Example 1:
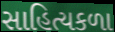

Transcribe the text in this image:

સાહિત્યકળા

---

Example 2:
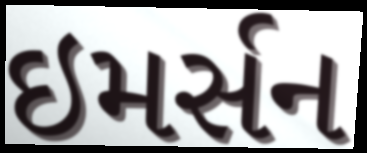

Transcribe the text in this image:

ઇમર્સન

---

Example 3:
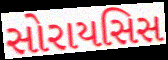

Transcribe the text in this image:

સોરાયસિસ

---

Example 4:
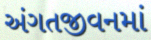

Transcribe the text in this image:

અંગતજીવનમાં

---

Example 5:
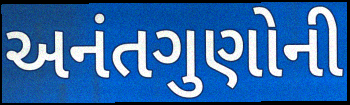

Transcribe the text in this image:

અનંતગુણોની